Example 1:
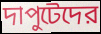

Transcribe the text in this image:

দাপুটেদের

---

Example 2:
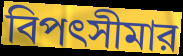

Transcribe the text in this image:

বিপৎসীমার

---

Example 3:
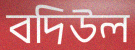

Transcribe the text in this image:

বদিউল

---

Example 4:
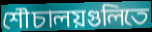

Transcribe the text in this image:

শৌচালয়গুলিতে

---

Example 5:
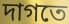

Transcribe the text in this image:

দাগতে